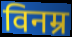
विनम्र